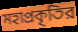
মহাপ্রকৃতির